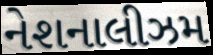
નેશનાલીઝમ